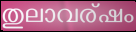
തുലാവര്ഷം